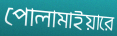
পোলামাইয়ারে